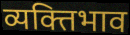
व्यक्तिभाव